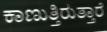
ಕಾಣುತ್ತಿರುತ್ತಾರೆ